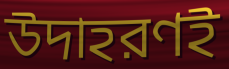
উদাহরণই